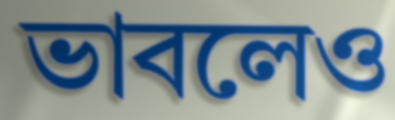
ভাবলেও